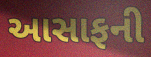
આસાફની